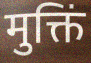
मुक्तिं